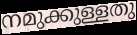
നമുക്കുള്ളതു